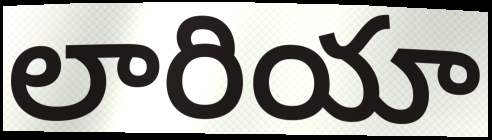
లారియా